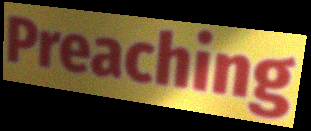
Preaching